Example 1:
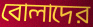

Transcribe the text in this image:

বোলাদের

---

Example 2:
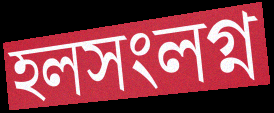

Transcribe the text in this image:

হলসংলগ্ন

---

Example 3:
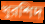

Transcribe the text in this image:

খুরশিদ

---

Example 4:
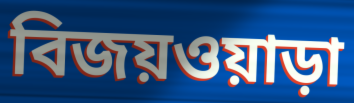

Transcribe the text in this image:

বিজয়ওয়াড়া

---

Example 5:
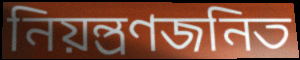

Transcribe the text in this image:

নিয়ন্ত্রণজনিত